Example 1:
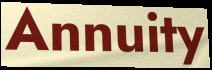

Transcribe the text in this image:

Annuity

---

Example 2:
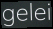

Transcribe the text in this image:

gelei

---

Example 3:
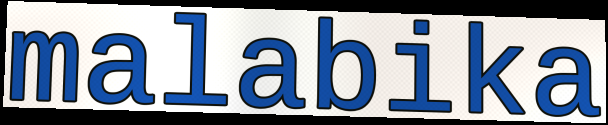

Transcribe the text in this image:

malabika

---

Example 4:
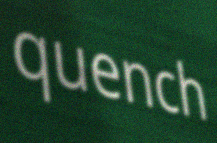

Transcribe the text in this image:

quench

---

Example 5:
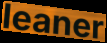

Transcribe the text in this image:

leaner